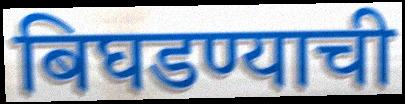
बिघडण्याची